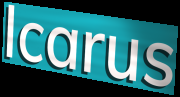
Icarus